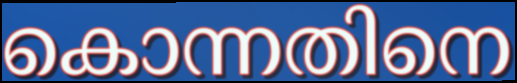
കൊന്നതിനെ